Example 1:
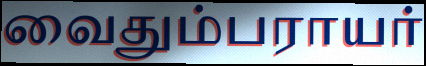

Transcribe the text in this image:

வைதும்பராயர்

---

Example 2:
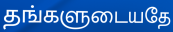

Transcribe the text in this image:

தங்களுடையதே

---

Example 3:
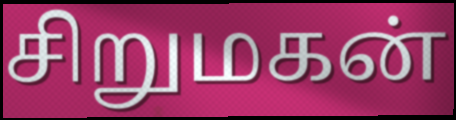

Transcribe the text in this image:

சிறுமகன்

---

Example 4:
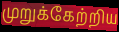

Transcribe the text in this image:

முறுக்கேற்றிய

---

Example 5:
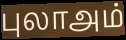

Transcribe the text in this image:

புலாஅம்